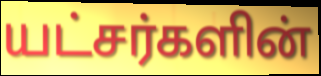
யட்சர்களின்